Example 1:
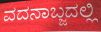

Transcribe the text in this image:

ವದನಾಬ್ಜದಲ್ಲಿ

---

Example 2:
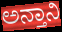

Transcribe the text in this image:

ಅನ್ತಾನಿ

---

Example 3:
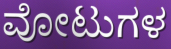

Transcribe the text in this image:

ವೋಟುಗಳ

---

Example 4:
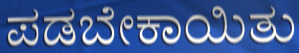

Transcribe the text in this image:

ಪಡಬೇಕಾಯಿತು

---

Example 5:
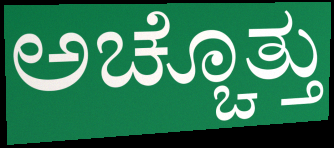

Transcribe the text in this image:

ಅಚ್ಚೊತ್ತು